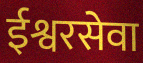
ईश्वरसेवा